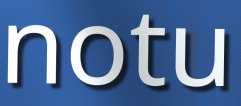
notu